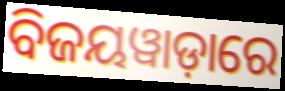
ବିଜୟୱାଡ଼ାରେ